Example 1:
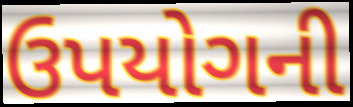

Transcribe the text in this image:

ઉપયોગની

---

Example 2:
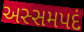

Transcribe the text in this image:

અસ્સમપદં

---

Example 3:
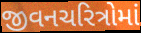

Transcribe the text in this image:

જીવનચરિત્રોમાં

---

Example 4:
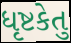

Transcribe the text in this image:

ધૃષ્ટકેતુ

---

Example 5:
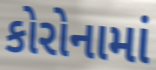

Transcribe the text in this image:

કોરોનામાં